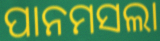
ପାନମସଲା